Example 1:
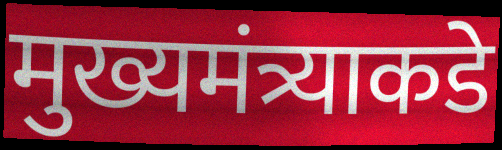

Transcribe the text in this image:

मुख्यमंत्र्याकडे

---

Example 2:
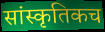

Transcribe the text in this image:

सांस्कृतिकच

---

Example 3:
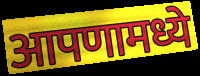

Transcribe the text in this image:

आपणामध्ये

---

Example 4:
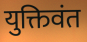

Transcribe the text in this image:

युक्तिवंत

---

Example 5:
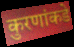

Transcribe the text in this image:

कुरणांकडे